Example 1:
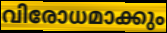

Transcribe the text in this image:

വിരോധമാക്കും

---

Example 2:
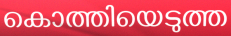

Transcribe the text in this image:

കൊത്തിയെടുത്ത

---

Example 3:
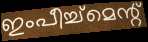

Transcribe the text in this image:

ഇംപീച്ച്മെന്റ്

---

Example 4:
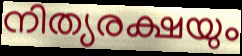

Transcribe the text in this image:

നിത്യരക്ഷയും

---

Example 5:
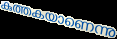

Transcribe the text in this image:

കുത്തകയാണെന്നു